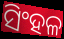
ସିଂହଳ